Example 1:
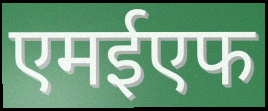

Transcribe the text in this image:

एमईएफ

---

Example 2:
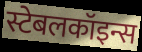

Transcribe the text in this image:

स्टेबलकॉइन्स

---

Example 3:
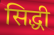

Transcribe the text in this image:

सिद्धी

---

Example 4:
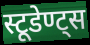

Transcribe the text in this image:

स्टूडेण्ट्स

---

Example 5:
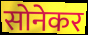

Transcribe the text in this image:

सोनेकर